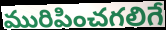
మురిపించగలిగే